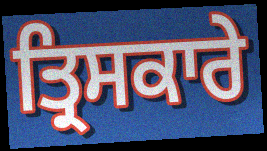
ਤ੍ਰਿਸਕਾਰੇ